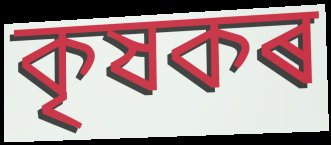
কৃষকৰ